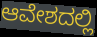
ಆವೇಶದಲ್ಲಿ